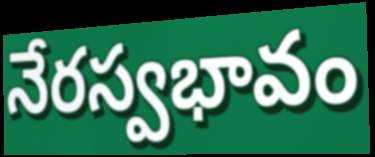
నేరస్వభావం